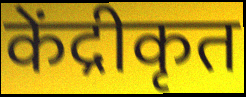
केंद्रीकृत